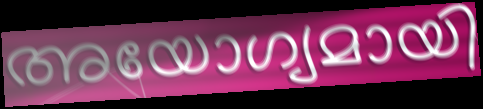
അയോഗ്യമായി